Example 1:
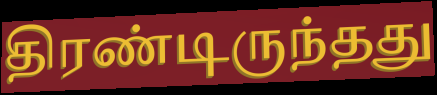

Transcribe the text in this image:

திரண்டிருந்தது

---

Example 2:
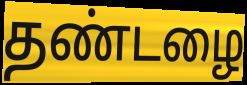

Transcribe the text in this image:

தண்டழை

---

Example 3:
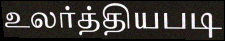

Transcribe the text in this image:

உலர்த்தியபடி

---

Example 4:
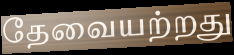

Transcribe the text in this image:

தேவையற்றது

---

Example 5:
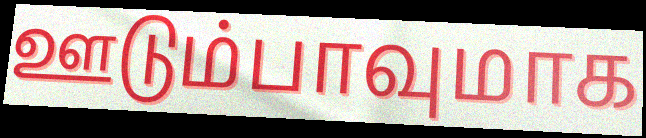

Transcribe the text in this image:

ஊடும்பாவுமாக